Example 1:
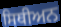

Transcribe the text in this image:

ਸਿਥੀਅਨ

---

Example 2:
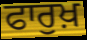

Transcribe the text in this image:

ਫਾਰੁਖ਼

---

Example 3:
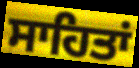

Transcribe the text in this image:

ਸਾਹਿਤਾਂ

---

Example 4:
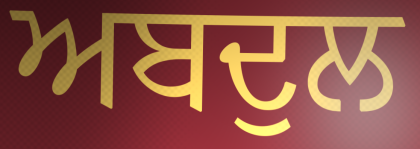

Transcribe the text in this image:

ਅਬਦੁਲ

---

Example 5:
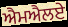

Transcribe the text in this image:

ਐਮਐਲਏ